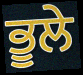
ਭੂਲੇ